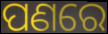
ପଣରେ